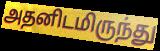
அதனிடமிருந்து